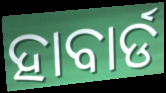
ହାବାର୍ଡ